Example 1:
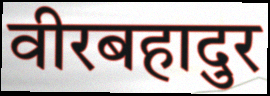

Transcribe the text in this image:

वीरबहादुर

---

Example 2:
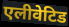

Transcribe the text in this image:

एलीवेटिड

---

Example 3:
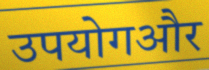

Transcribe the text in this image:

उपयोगऔर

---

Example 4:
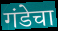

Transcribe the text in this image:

गंडेचा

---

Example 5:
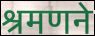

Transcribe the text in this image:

श्रमणने